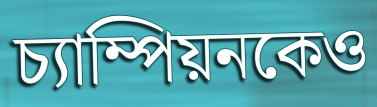
চ্যাম্পিয়নকেও